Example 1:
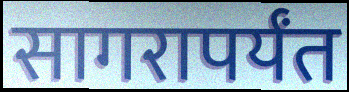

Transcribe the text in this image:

सागरापर्यंत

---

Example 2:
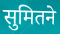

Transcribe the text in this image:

सुमितने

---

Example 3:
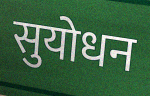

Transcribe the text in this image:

सुयोधन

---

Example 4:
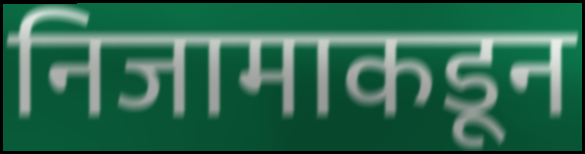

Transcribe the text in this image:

निजामाकडून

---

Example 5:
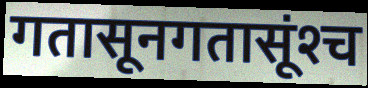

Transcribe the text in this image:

गतासूनगतासूंश्च